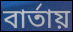
বার্তায়